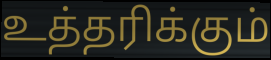
உத்தரிக்கும்